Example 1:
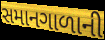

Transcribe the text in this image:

સમાનગાળાની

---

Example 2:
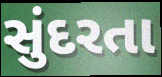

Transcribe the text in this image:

સુંદરતા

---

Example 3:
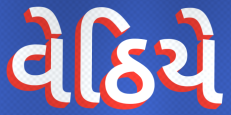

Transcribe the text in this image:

વેઠિયે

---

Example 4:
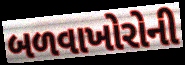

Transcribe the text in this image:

બળવાખોરોની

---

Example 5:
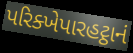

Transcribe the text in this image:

પરિક્ખેપારહટ્ઠાનં